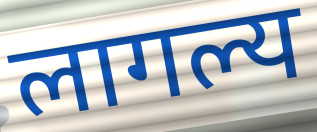
लागल्य